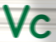
Vc